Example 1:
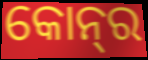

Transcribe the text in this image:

କୋନ୍‌ର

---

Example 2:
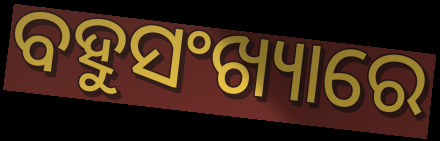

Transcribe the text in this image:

ବହୁସଂଖ୍ୟାରେ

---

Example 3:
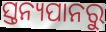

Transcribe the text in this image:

ସ୍ତନ୍ୟପାନରୁ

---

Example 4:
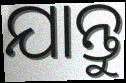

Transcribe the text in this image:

ଯାନ୍ତୁ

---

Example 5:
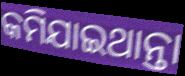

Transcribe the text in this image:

କମିଯାଇଥାନ୍ତା